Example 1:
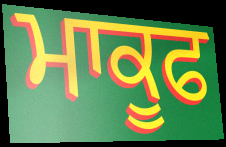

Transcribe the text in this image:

ਮਾਕੂਫ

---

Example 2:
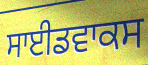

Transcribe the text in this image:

ਸਾਈਡਵਾਕਸ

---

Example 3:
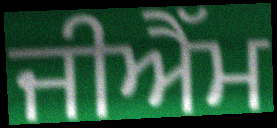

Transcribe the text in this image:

ਜੀਐੱਮ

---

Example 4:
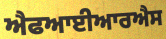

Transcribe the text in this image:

ਐਫਆਈਆਰਐਸ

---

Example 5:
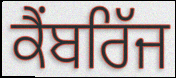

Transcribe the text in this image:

ਕੈਂਬਰਿੱਜ